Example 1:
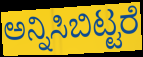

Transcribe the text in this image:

ಅನ್ನಿಸಿಬಿಟ್ಟರೆ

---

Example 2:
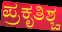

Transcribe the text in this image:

ಪ್ರಕೃತಿಶ್ಚ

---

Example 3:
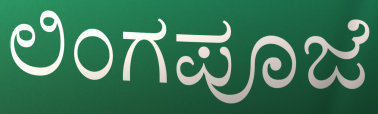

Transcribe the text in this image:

ಲಿಂಗಪೂಜೆ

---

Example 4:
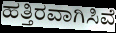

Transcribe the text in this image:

ಹತ್ತಿರವಾಗಿಸಿವೆ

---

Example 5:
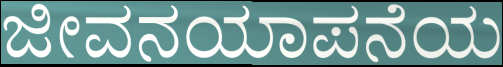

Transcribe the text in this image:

ಜೀವನಯಾಪನೆಯ